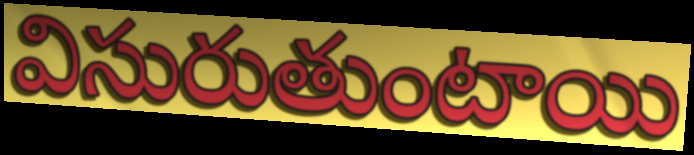
విసురుతుంటాయి